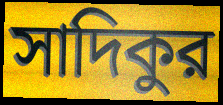
সাদিকুর